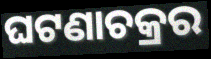
ଘଟଣାଚକ୍ରର